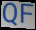
QF